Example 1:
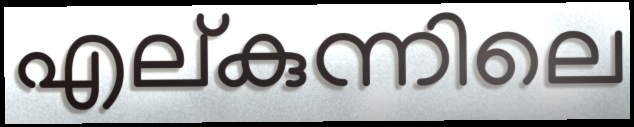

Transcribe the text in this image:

എല്കുന്നിലെ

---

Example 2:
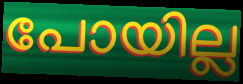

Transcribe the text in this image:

പോയില്ല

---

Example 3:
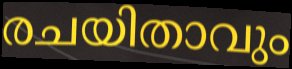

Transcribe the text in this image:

രചയിതാവും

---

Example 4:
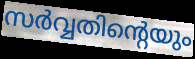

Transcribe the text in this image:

സർവ്വതിന്റെയും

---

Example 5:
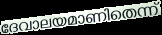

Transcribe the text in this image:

ദേവാലയമാണിതെന്ന്